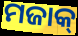
ମଜାକ୍